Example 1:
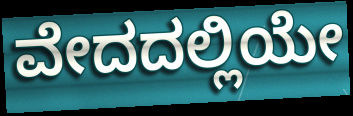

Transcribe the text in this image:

ವೇದದಲ್ಲಿಯೇ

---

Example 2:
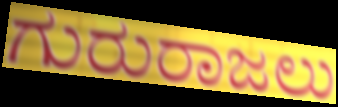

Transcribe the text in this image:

ಗುರುರಾಜಲು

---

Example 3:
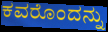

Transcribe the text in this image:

ಕವರೊಂದನ್ನು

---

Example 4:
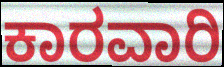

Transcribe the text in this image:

ಕಾರವಾರಿ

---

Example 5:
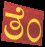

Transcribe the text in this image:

ತೆಂ